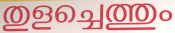
തുളച്ചെത്തും